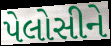
પેલોસીને